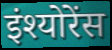
इंश्योरेंस